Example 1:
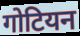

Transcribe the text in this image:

गोटियन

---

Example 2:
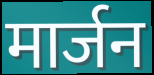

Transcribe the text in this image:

मार्जन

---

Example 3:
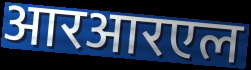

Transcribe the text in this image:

आरआरएल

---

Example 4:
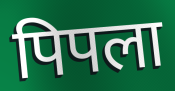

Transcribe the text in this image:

पिपला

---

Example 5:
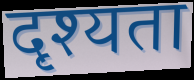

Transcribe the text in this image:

दृश्यता